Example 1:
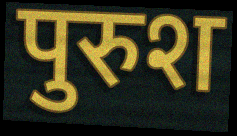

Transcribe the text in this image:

पुरुश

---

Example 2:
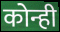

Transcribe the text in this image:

कोन्ही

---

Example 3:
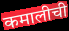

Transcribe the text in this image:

कमालीची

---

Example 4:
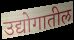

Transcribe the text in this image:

उद्योगातील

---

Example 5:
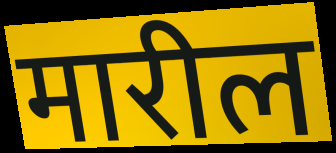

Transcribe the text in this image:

मारील